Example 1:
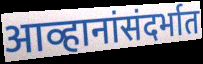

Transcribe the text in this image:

आव्हानांसंदर्भात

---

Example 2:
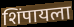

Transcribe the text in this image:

शिंपायला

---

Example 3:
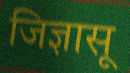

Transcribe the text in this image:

जिज्ञासू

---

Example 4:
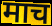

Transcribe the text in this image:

माच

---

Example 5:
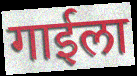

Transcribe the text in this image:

गाईला